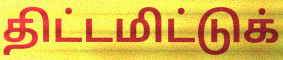
திட்டமிட்டுக்